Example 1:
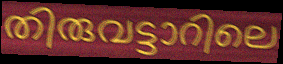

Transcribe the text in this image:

തിരുവട്ടാറിലെ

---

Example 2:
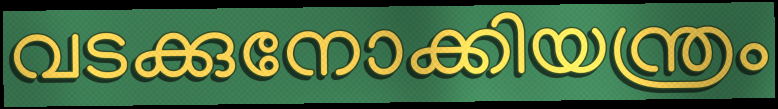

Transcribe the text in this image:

വടക്കുനോക്കിയന്ത്രം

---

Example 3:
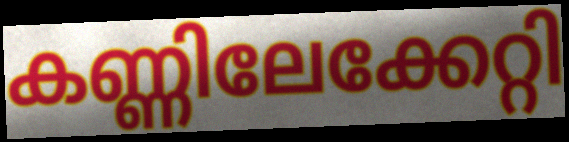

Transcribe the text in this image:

കണ്ണിലേക്കേറ്റി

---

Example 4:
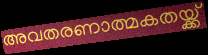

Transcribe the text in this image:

അവതരണാത്മകതയ്ക്ക്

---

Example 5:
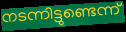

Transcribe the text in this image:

നടന്നിട്ടുണ്ടെന്ന്